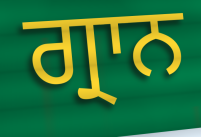
ਗ੍ਰਾਨ